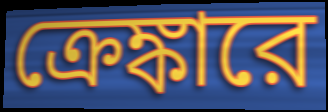
ক্রেঙ্কারে